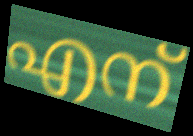
എന്